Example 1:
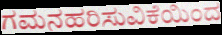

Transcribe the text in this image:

ಗಮನಹರಿಸುವಿಕೆಯಿಂದ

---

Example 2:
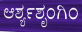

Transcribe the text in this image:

ಆರ್ಶ್ಯಶೃಂಗಿಂ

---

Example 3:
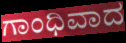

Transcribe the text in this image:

ಗಾಂಧಿವಾದ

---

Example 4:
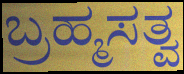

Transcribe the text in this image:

ಬ್ರಹ್ಮಸತ್ವ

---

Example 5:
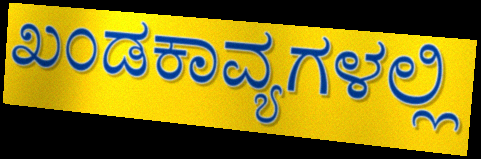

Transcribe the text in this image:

ಖಂಡಕಾವ್ಯಗಳಲ್ಲಿ